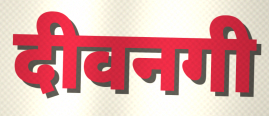
दीवनगी